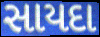
સાયદા